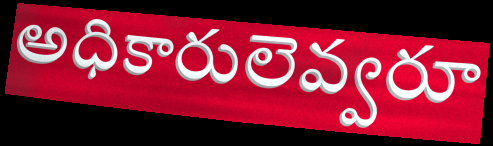
అధికారులెవ్వరూ